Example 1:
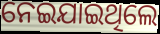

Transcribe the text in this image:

ନେଇଯାଇଥିଲେ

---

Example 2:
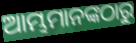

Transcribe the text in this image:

ଆମ୍ଭମାନଙ୍କଠାରୁ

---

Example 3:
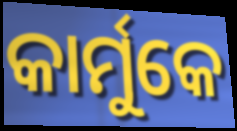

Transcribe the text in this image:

କାର୍ମୁକେ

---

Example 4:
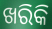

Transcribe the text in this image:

ଖରିକି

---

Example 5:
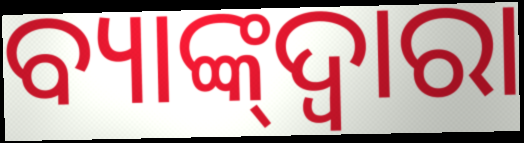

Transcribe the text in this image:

ବ୍ୟାଙ୍କ୍‌ଦ୍ୱାରା